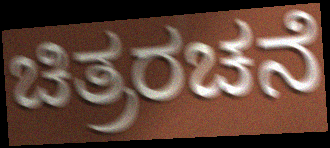
ಚಿತ್ರರಚನೆ